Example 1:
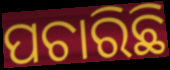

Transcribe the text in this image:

ପଚାରିଛି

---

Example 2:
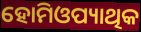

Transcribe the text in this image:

ହୋମିଓପ୍ୟାଥିକ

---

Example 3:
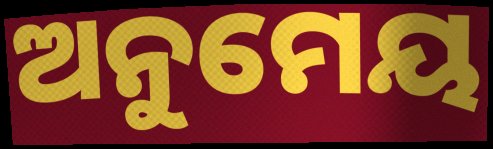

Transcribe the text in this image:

ଅନୁମେୟ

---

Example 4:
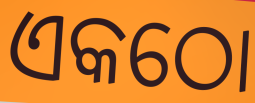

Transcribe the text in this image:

ଏକଠୋ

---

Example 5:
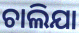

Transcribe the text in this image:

ଚାଲିଯା